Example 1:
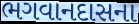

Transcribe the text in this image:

ભગવાનદાસના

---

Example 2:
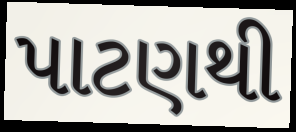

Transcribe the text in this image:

પાટણથી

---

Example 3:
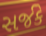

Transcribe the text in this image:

સર્જકે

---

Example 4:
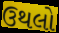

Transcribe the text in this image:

ઉથલો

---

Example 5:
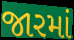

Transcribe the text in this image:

જારમાં